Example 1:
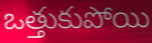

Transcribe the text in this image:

ఒత్తుకుపోయి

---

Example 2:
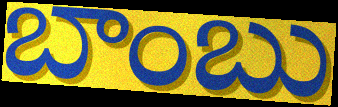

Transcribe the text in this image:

బాంబు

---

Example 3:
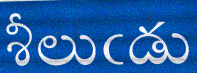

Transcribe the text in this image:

శీలుఁడు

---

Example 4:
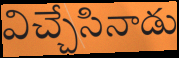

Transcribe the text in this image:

విచ్చేసినాడు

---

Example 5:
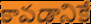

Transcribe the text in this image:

కావడానికే